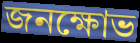
জনক্ষোভ